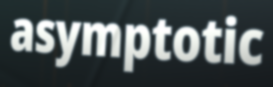
asymptotic